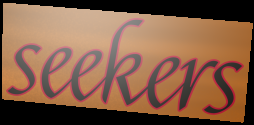
seekers